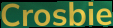
Crosbie